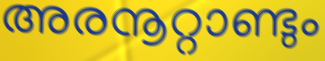
അരനൂറ്റാണ്ടും